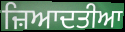
ਜ਼ਿਆਦਤੀਆ